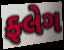
ફ્લેગ